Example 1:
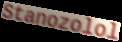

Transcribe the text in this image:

Stanozolol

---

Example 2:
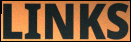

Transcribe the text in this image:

LINKS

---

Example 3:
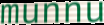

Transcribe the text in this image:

munnu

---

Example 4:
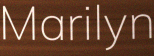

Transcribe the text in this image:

Marilyn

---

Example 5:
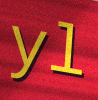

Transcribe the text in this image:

yl